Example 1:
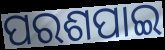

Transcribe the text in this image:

ପରଶପାଇ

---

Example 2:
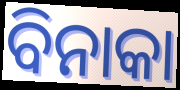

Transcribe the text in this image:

ବିନାକା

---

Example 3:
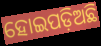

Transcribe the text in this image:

ହୋଇପଡ଼ିଅଛି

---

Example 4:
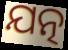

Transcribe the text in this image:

ଯତ୍ନ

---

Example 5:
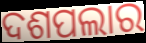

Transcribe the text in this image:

ଦଶପଲାର